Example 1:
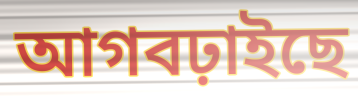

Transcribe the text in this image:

আগবঢ়াইছে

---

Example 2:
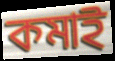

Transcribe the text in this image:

কমাই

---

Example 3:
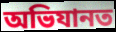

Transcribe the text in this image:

অভিযানত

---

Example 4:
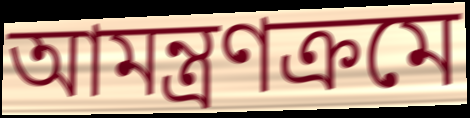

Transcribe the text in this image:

আমন্ত্ৰণক্ৰমে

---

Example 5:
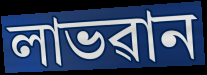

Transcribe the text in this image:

লাভৱান